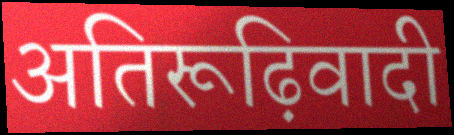
अतिरूढ़िवादी